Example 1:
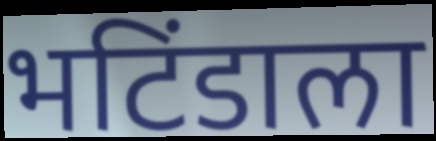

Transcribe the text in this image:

भटिंडाला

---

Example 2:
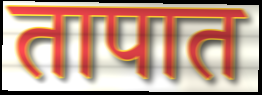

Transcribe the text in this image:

तापात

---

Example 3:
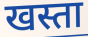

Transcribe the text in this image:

खस्ता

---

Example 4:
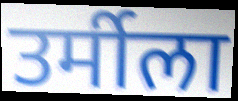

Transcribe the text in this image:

उर्मीला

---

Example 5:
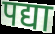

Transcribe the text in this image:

पद्या